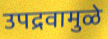
उपद्रवामुळे